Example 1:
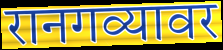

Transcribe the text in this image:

रानगव्यावर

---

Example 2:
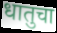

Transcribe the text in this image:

धातुचा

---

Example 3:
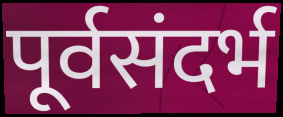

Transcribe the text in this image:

पूर्वसंदर्भ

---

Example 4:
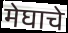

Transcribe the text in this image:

मेघाचे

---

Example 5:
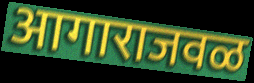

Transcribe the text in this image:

आगाराजवळ